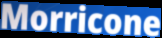
Morricone